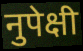
नुपेक्षी